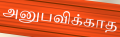
அனுபவிக்காத